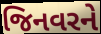
જિનવરને